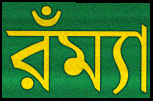
রঁম্যা